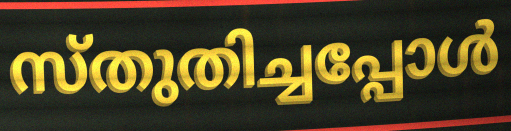
സ്തുതിച്ചപ്പോൾ